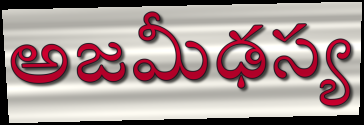
అజమీఢస్య